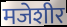
मजेशीर